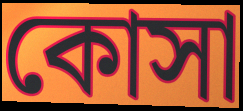
কোসা